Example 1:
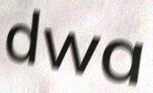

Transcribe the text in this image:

dwa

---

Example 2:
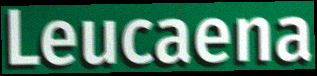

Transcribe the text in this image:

Leucaena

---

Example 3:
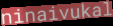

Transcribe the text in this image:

ninaivukal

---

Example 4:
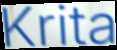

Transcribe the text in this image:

Krita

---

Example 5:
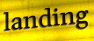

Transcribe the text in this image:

landing